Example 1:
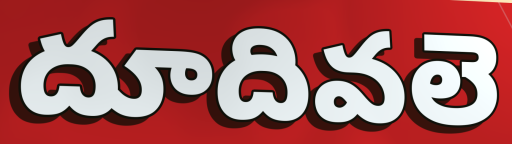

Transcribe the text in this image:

దూదివలె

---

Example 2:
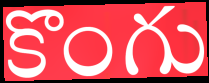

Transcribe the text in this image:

కొంగు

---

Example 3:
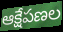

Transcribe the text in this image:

ఆక్షేపణల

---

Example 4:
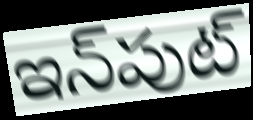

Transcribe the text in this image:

ఇన్‌పుట్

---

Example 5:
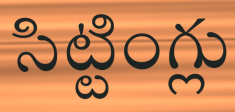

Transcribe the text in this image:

సిట్టింగ్లు